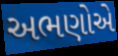
અભણોએ